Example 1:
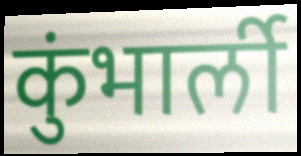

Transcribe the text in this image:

कुंभार्ली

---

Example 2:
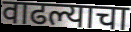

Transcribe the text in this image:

वाढल्याचा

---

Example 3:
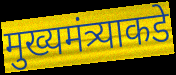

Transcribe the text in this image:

मुख्यमंत्र्याकडे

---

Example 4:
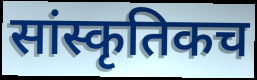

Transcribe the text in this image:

सांस्कृतिकच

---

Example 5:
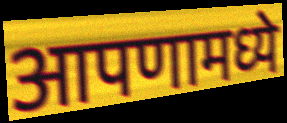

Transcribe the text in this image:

आपणामध्ये